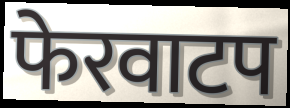
फेरवाटप